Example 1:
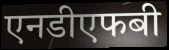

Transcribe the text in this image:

एनडीएफबी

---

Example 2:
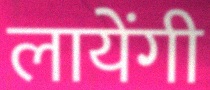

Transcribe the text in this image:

लायेंगी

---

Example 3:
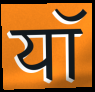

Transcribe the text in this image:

यॉ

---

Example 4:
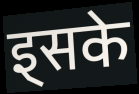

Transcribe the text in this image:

इ्सके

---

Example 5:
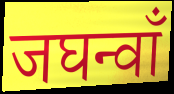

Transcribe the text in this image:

जघन्वाँ